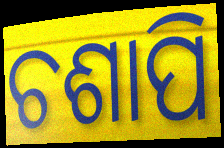
ଚଶାପି